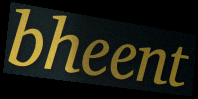
bheent